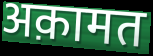
अक़ामत